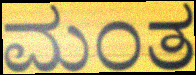
ಮಂತ